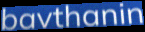
bavthanin